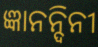
ଜ୍ଞାନନ୍ଦିନୀ